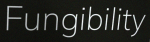
Fungibility